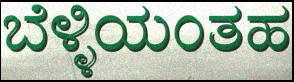
ಬೆಳ್ಳಿಯಂತಹ